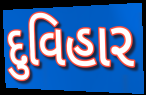
દુવિહાર